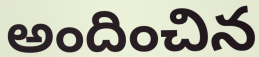
అందించిన